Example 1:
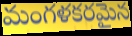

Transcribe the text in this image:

మంగళకరమైన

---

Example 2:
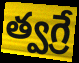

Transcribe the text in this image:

త్వగ్రే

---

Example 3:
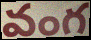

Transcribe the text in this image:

వంగ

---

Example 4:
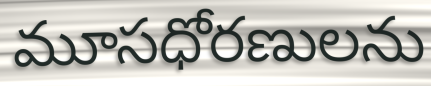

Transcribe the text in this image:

మూసధోరణులను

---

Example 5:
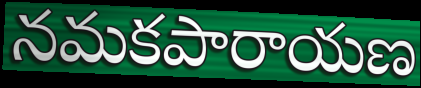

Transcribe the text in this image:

నమకపారాయణ